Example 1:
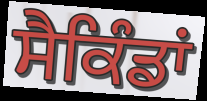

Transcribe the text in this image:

ਸੈਕਿੰਡਾਂ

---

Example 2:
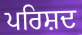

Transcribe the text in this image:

ਪਰਿਸ਼ਦ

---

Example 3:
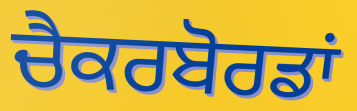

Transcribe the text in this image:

ਚੈਕਰਬੋਰਡਾਂ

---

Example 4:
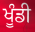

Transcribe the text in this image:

ਖੂੰਡੀ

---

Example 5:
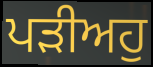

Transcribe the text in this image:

ਪੜੀਅਹੁ